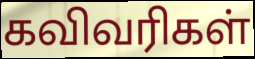
கவிவரிகள்